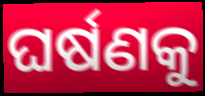
ଘର୍ଷଣକୁ